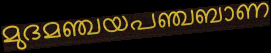
മുദമഞ്ചയപഞ്ചബാണ